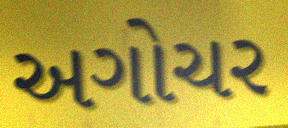
અગોચર